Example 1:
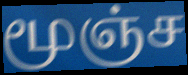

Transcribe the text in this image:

மூஞ்ச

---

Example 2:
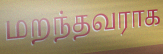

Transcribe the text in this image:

மறந்தவராக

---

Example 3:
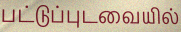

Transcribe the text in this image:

பட்டுப்புடவையில்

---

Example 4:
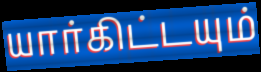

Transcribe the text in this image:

யார்கிட்டயும்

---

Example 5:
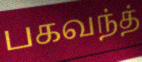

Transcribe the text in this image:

பகவந்த்